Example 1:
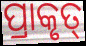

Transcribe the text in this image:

ପ୍ରାକୃତ୍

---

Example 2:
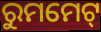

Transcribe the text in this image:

ରୁମମେଟ୍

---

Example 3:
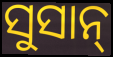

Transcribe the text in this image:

ସୁସାନ୍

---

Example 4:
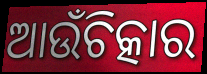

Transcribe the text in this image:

ଆଉଁଚିତ୍କାର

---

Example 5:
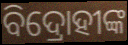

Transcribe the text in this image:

ବିଦ୍ରୋହୀଙ୍କ